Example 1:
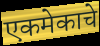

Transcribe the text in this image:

एकमेकाचे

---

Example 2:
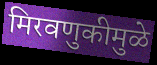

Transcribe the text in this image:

मिरवणुकीमुळे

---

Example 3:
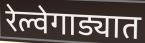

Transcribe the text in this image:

रेल्वेगाड्यात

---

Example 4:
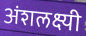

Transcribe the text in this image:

अंशलक्ष्यी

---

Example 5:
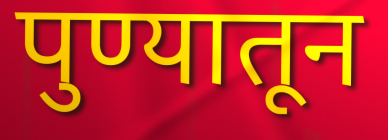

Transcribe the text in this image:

पुण्यातून